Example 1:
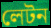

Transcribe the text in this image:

লেটন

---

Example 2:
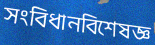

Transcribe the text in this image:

সংবিধানবিশেষজ্ঞ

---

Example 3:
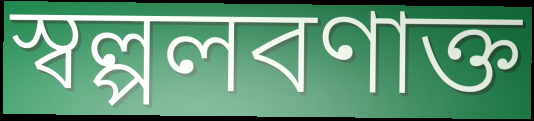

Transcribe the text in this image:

স্বল্পলবণাক্ত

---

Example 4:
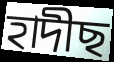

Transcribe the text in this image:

হাদীছ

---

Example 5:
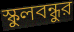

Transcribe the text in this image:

স্কুলবন্ধুর